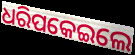
ଧରିପକେଇଲେ